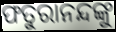
ଫତୁରାନନ୍ଦଙ୍କୁ